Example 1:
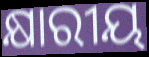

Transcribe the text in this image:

କ୍ଷାରୀୟ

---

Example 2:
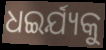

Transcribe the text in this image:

ଧଇର୍ଯ୍ୟକୁ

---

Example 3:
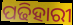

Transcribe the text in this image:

ପଢିହାରୀ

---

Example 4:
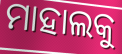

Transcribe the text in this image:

ମାହାଲକୁ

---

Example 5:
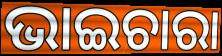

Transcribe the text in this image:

ଭାଇଚାରା